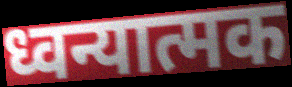
ध्वन्यात्मक